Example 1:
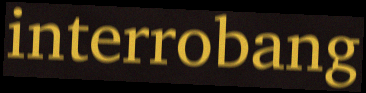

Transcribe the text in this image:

interrobang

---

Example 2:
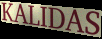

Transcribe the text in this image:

KALIDAS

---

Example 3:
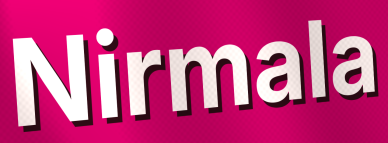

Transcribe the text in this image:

Nirmala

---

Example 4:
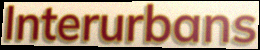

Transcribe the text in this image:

Interurbans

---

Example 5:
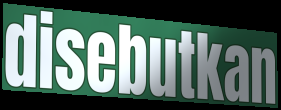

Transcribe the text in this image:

disebutkan